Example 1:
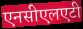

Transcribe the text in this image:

एनसीएलएटी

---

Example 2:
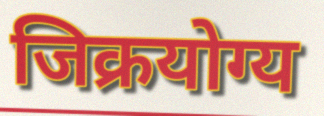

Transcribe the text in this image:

जिक्रयोग्य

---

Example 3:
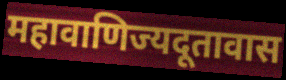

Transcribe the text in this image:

महावाणिज्यदूतावास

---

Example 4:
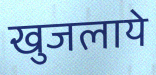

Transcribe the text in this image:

खुजलाये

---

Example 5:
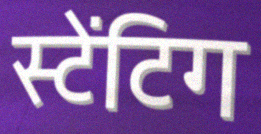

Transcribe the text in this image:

स्टेंटिग